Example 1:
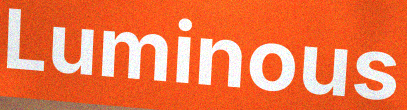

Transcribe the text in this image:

Luminous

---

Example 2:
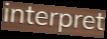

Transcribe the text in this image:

interpret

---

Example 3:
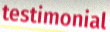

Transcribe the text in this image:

testimonial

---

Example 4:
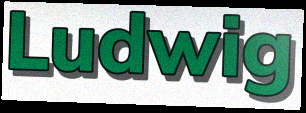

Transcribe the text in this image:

Ludwig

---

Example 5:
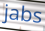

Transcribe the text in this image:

jabs